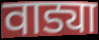
वाड्या